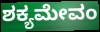
ಶಕ್ಯಮೇವಂ